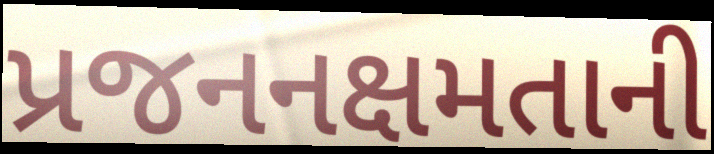
પ્રજનનક્ષમતાની